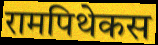
रामपिथेकस